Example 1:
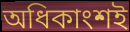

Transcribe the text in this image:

অধিকাংশই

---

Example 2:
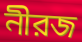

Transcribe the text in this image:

নীরজ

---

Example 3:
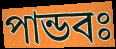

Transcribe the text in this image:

পান্ডবঃ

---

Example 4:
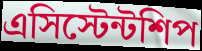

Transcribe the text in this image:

এসিস্টেন্টশিপ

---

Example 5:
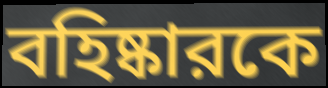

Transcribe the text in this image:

বহিষ্কারকে